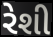
રેશી